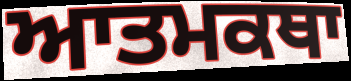
ਆਤਮਕਥਾ